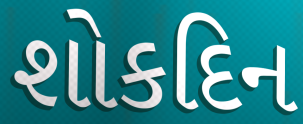
શોકદિન